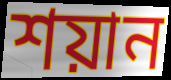
শয়ান